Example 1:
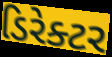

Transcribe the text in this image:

ડિરેક્ટર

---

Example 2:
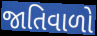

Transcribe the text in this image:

જાતિવાળો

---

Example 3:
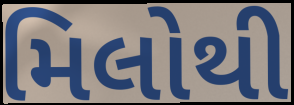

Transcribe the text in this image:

મિલોથી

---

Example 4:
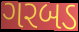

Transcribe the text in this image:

ગરબડ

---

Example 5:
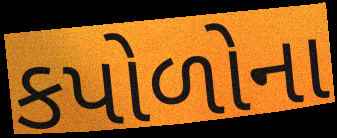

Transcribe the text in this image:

કપોળોના